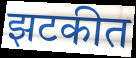
झटकीत